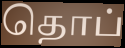
தொப்